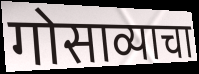
गोसाव्याचा